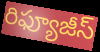
రిఫ్యూజీస్